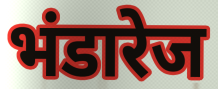
भंडारेज